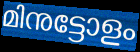
മിനുട്ടോളം